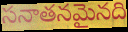
సనాతనమైనది